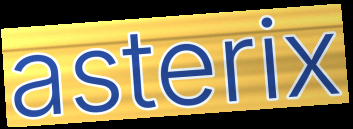
asterix